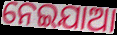
ନେଇଯାଆ